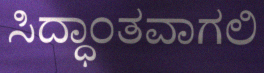
ಸಿದ್ಧಾಂತವಾಗಲಿ